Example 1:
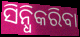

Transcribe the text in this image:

ସିନ୍ଧିକରିବା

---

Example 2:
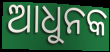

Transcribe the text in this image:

ଆଧୁନକ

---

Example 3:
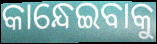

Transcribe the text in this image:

କାନ୍ଧେଇବାକୁ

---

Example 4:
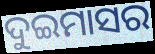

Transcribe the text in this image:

ଦୁଇମାସର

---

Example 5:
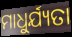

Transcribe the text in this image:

ମାଧୁର୍ଯ୍ୟତା